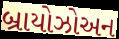
બ્રાયોઝોઅન